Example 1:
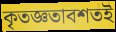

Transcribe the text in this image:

কৃতজ্ঞতাবশতই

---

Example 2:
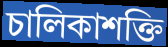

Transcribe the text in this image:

চালিকাশক্তি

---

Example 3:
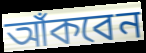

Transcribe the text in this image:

আঁকবেন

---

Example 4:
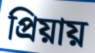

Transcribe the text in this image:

প্রিয়ায়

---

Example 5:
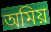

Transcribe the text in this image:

অমিয়